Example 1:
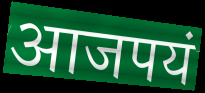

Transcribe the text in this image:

आजपयं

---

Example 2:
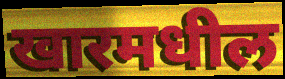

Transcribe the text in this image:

खारमधील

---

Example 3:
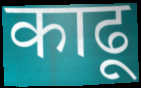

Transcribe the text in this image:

काढू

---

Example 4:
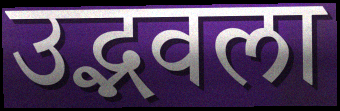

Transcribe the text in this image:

उद्भवला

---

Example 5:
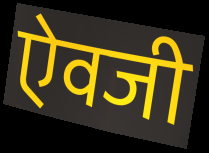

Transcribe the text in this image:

ऐवजी